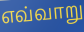
எவ்வாறு